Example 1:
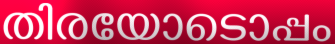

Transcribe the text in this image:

തിരയോടൊപ്പം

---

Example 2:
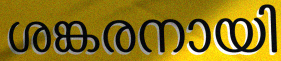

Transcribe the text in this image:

ശങ്കരനായി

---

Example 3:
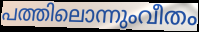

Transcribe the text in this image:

പത്തിലൊന്നുംവീതം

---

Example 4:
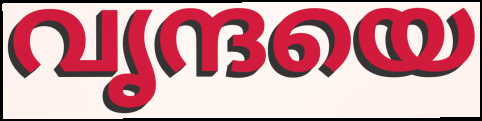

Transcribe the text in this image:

വൃന്ദയെ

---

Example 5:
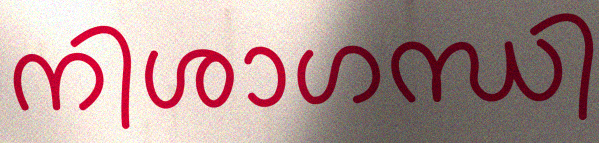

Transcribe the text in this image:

നിശാഗന്ധി